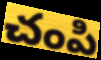
చంపి